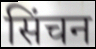
सिंचन